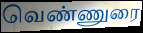
வெண்ணுரை